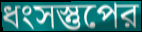
ধংসস্তুপের